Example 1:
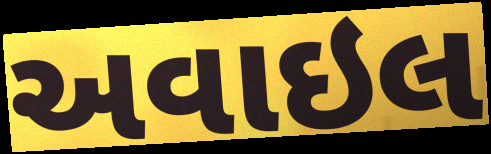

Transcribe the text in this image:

અવાઇલ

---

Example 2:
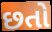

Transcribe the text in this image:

છતો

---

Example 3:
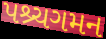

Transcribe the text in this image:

પશ્ર્ચગમન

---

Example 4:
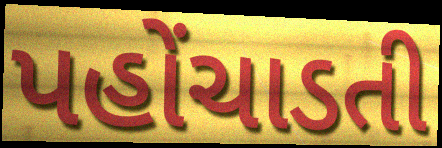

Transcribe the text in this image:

પહોંચાડતી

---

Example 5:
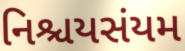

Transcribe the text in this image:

નિશ્ચયસંયમ